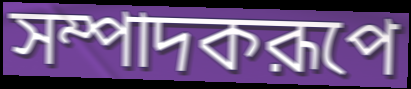
সম্পাদকরূপে